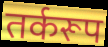
तर्करूप